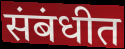
संबंधीत